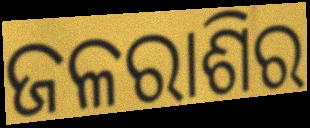
ଜଳରାଶିର